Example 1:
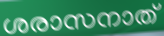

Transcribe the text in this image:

ശരാസനാത്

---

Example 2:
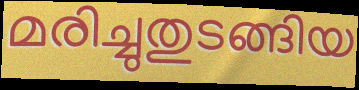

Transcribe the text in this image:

മരിച്ചുതുടങ്ങിയ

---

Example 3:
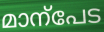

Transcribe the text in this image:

മാന്പേട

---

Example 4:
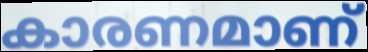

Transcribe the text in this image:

കാരണമാണ്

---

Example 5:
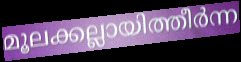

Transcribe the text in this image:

മൂലക്കല്ലായിത്തീർന്ന